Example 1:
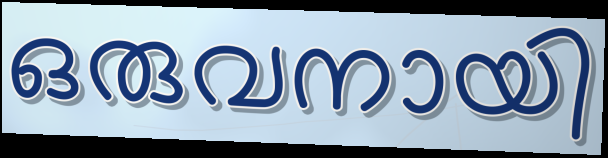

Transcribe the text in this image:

ഒരുവനായി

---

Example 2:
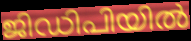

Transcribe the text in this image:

ജിഡിപിയിൽ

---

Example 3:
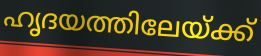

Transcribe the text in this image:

ഹൃദയത്തിലേയ്ക്ക്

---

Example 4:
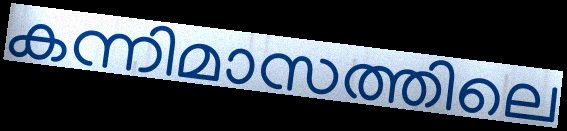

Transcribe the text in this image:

കന്നിമാസത്തിലെ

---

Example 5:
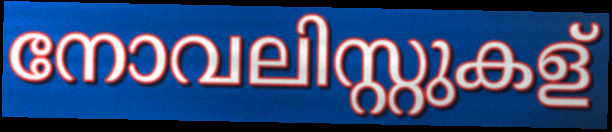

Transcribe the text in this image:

നോവലിസ്റ്റുകള്